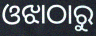
ଓଝାଠାରୁ